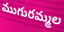
ముగురమ్మల